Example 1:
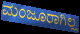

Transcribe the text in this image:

ಮಂಜೂರಾಗಿಲ್ಲ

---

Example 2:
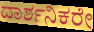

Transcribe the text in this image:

ದಾರ್ಶನಿಕರೇ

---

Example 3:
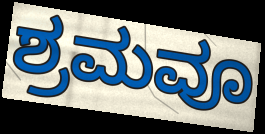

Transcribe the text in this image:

ಶ್ರಮವೂ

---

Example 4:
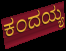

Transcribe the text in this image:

ಕಂದಯ್ಯ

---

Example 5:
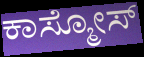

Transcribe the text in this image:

ಕಾಸ್ಮೋಸ್